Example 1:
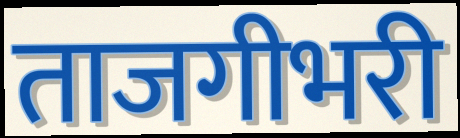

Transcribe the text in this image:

ताजगीभरी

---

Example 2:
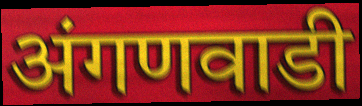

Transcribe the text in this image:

अंगणवाडी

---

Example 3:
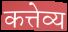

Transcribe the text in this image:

कत्तेव्य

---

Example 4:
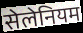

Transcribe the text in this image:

सेलेनियम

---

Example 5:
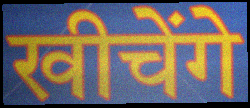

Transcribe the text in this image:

खीचेंगे